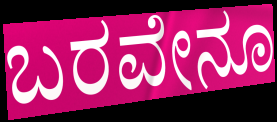
ಬರವೇನೂ